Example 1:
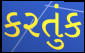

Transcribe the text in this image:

કરતુંક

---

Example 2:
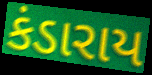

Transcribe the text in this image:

કંડારાય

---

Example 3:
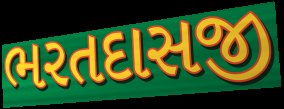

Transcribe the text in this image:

ભરતદાસજી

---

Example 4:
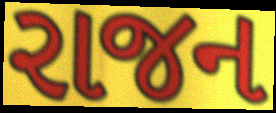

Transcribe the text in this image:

રાજન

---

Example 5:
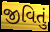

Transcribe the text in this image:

જીવિતું